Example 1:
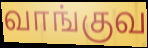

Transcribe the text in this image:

வாங்குவ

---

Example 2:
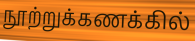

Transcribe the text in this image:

நூற்றுக்கணக்கில்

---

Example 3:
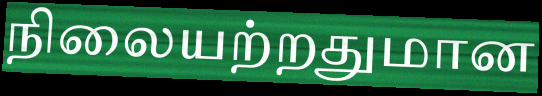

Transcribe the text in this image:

நிலையற்றதுமான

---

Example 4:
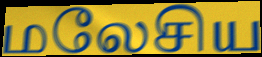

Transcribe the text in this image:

மலேசிய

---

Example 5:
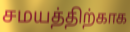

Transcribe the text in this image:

சமயத்திற்காக